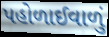
પહોળાઈવાળું